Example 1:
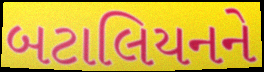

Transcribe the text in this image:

બટાલિયનને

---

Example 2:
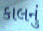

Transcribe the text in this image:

કાલનું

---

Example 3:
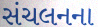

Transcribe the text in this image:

સંચલનના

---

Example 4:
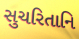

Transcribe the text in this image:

સુચરિતાનિ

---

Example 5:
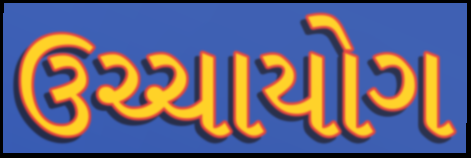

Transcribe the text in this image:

ઉચ્ચાયોગ